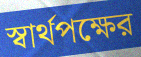
স্বার্থপক্ষের